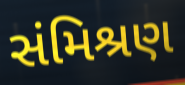
સંમિશ્રણ